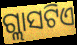
ଗ୍ଲାସଟିଏ